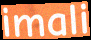
imali